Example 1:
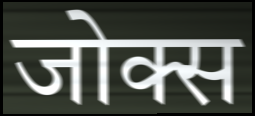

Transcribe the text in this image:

जोक्स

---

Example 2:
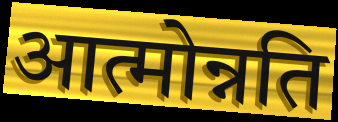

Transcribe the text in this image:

आत्मोन्नति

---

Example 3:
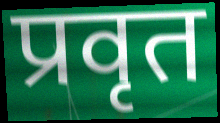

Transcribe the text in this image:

प्रवृत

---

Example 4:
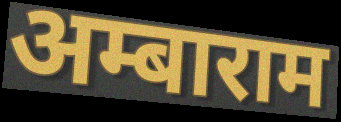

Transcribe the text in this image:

अम्बाराम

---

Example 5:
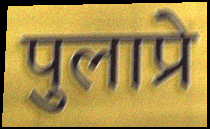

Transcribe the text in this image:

पुलाप्रे